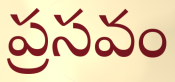
ప్రసవం